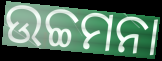
ଉଚ୍ଚମନା